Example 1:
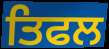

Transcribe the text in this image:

ਤਿਫਲ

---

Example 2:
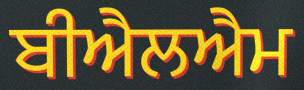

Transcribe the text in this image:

ਬੀਐਲਐਮ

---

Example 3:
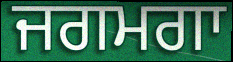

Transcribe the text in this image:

ਜਗਮਗਾ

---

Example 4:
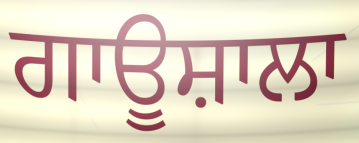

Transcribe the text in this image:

ਗਾਊਸ਼ਾਲਾ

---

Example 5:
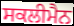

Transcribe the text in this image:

ਸਕਲੀਮੈਨ